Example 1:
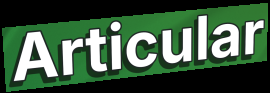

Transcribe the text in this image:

Articular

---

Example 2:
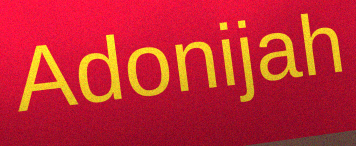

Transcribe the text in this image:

Adonijah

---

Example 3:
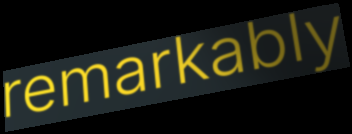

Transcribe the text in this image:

remarkably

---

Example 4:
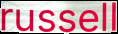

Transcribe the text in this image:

russell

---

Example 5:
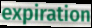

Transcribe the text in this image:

expiration